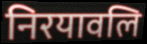
निरयावलि